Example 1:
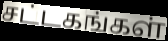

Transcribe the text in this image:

சட்டகங்கள்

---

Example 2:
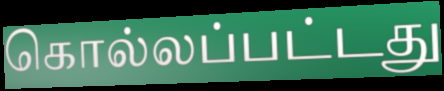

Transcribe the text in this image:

கொல்லப்பட்டது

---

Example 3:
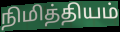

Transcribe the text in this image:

நிமித்தியம்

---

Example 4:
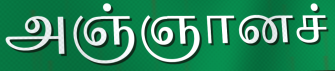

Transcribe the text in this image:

அஞ்ஞானச்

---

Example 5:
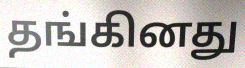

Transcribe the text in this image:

தங்கினது